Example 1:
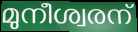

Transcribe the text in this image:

മുനീശ്വരന്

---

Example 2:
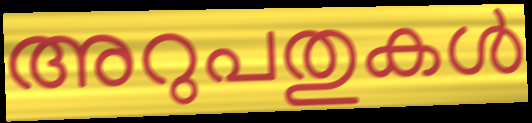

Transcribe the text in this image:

അറുപതുകൾ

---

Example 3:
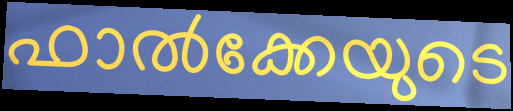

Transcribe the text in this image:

ഫാൽക്കേയുടെ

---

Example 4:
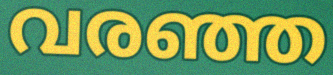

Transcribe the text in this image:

വരഞ്ഞ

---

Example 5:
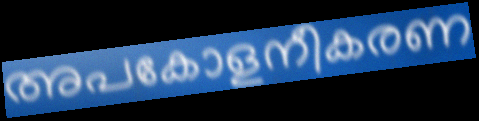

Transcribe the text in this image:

അപകോളനീകരണ